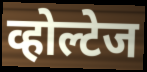
व्होल्टेज